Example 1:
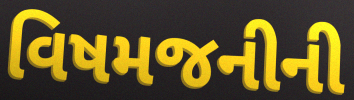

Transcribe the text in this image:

વિષમજનીની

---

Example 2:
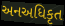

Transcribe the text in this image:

અનઅધિકૃત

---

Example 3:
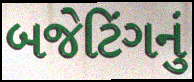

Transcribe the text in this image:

બજેટિંગનું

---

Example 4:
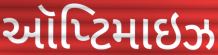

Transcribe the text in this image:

ઑપ્ટિમાઇઝ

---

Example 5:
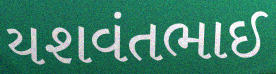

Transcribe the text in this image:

યશવંતભાઈ